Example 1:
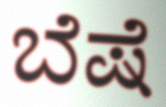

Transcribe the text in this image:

ಬೆಷೆ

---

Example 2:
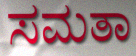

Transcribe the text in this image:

ಸಮತಾ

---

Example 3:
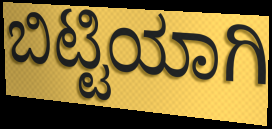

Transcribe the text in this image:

ಬಿಟ್ಟಿಯಾಗಿ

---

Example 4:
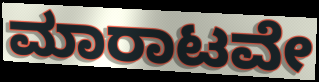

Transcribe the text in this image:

ಮಾರಾಟವೇ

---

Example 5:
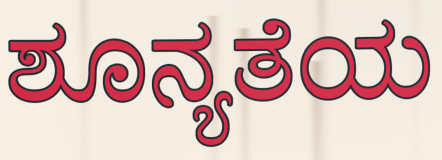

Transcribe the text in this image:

ಶೂನ್ಯತೆಯ